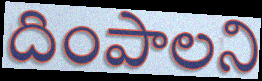
దింపాలని